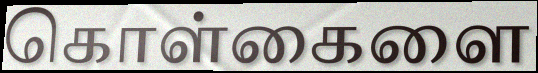
கொள்கைளை